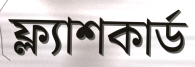
ফ্ল্যাশকার্ড